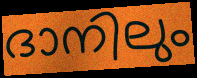
ദാനിലും